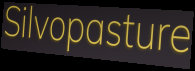
Silvopasture